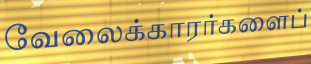
வேலைக்காரர்களைப்